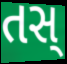
તસ્